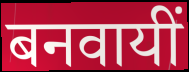
बनवायीं